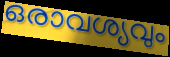
ഒരാവശ്യവും